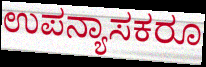
ಉಪನ್ಯಾಸಕರೂ